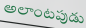
అలాంటపుడు